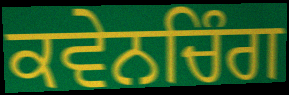
ਕਵੇਨਚਿੰਗ